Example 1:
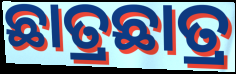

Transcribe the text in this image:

ଛାତ୍ରଛାତ୍ର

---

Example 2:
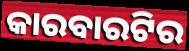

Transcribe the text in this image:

କାରବାରଟିର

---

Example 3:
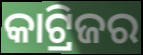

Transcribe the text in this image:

କାଟ୍ରିଜର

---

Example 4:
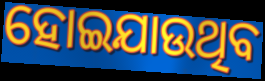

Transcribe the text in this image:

ହୋଇଯାଉଥିବ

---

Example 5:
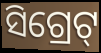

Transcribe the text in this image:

ସିଗ୍ରେଟ୍